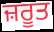
ਜ਼ਰੂਤ